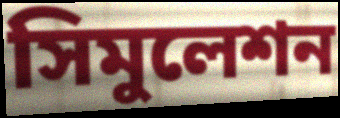
সিমুলেশন